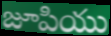
జూపియు